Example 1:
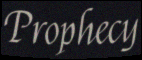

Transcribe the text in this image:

Prophecy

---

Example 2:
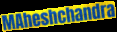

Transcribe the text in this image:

MAheshchandra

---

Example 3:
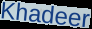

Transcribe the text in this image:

Khadeer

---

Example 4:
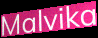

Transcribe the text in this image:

Malvika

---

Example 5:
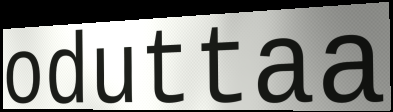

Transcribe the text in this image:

oduttaa